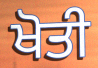
ਖੋਤੀ